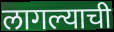
लागल्याची